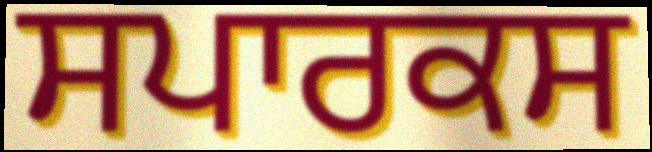
ਸਪਾਰਕਸ